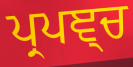
ਪ੍ਰਪਞ੍ਚ